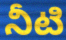
నీటి